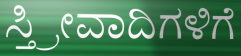
ಸ್ತ್ರೀವಾದಿಗಳಿಗೆ